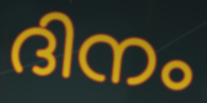
ദിനം